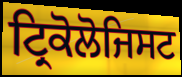
ਟ੍ਰਿਕੋਲੋਜਿਸਟ